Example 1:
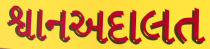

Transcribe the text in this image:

શ્વાનઅદાલત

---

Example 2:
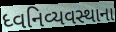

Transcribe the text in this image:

ધ્વનિવ્યવસ્થાના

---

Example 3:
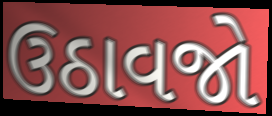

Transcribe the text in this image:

ઉઠાવજો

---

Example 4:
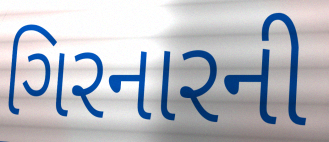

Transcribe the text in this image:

ગિરનારની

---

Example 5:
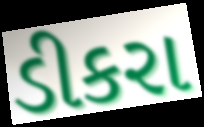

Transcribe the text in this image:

ડીકરા